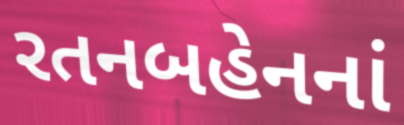
રતનબહેનનાં